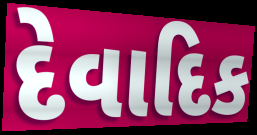
દેવાદિક